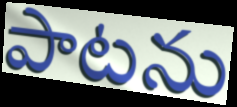
పాటను